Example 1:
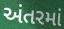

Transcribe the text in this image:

અંતરમાં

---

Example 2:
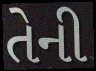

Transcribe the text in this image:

તેની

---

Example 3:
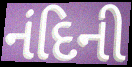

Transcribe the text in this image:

નંદિની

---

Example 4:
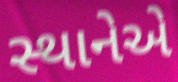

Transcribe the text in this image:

સ્થાનેએ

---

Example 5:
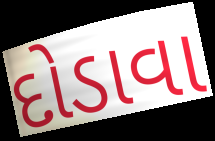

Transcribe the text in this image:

દોડાવા